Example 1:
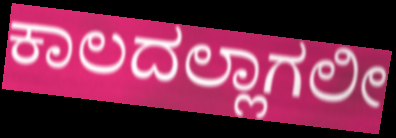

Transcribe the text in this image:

ಕಾಲದಲ್ಲಾಗಲೀ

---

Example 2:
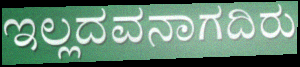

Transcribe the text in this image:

ಇಲ್ಲದವನಾಗದಿರು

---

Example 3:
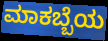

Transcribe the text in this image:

ಮಾಕಬ್ಬೆಯ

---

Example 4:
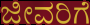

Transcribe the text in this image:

ಜೀವರಿಗೆ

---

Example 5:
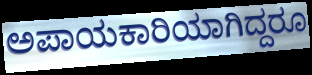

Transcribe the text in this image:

ಅಪಾಯಕಾರಿಯಾಗಿದ್ದರೂ